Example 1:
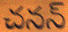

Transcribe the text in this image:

చనన్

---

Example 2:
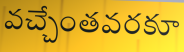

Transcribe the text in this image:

వచ్చేంతవరకూ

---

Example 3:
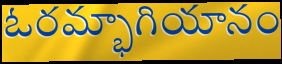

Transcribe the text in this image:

ఓరమ్భాగియానం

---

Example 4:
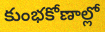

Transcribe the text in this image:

కుంభకోణాల్లో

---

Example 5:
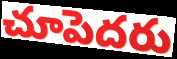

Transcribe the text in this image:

చూపెదరు